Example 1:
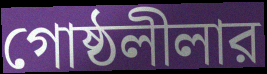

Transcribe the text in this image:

গোষ্ঠলীলার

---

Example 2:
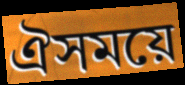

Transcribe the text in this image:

ঐসময়ে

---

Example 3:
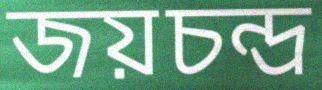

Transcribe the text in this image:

জয়চন্দ্র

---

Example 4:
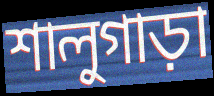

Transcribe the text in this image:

শালুগাড়া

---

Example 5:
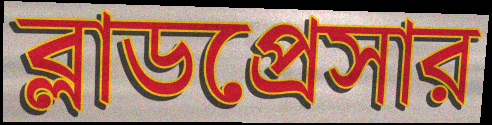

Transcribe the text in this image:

ব্লাডপ্রেসার